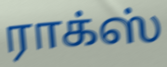
ராக்ஸ்